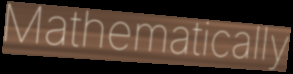
Mathematically